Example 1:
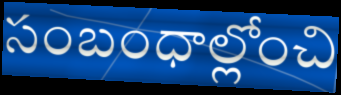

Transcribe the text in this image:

సంబంధాల్లోంచి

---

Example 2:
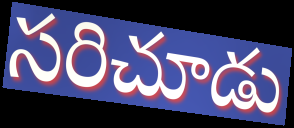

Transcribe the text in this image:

సరిచూడు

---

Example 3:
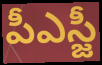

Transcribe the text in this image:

పీఎస్జీ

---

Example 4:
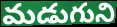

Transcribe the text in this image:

మడుగుని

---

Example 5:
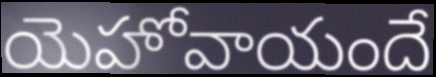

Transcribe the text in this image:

యెహోవాయందే